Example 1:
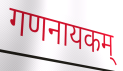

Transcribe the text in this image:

गणनायकम्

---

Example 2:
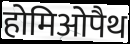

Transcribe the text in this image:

होमिओपैथ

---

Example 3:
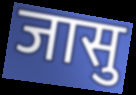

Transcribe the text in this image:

जासु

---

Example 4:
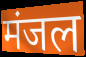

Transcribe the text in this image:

मंजल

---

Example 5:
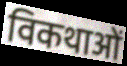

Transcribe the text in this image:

विकथाओं